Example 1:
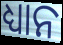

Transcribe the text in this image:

ଧ୍ୟାନ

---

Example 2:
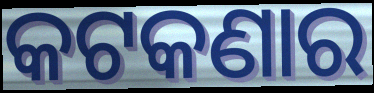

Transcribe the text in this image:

କଟକଣାର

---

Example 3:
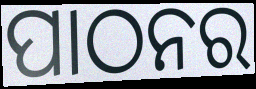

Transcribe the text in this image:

ପାଠନର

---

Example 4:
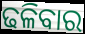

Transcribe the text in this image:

ଢଳିବାର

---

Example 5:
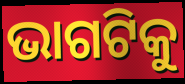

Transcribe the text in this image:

ଭାଗଟିକୁ